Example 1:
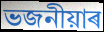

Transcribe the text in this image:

ভজনীয়াৰ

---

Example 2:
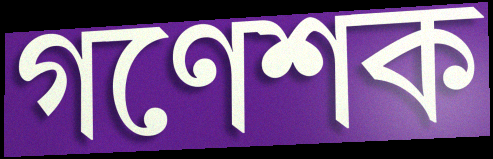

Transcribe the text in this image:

গণেশক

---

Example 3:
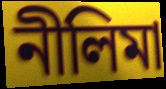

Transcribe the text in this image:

নীলিমা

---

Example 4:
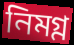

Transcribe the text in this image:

নিমগ্ন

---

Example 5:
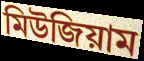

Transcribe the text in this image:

মিউজিয়াম